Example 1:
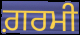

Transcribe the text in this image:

ਗ਼ਰਮੀ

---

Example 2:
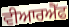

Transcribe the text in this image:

ਵੀਆਰਐੱਫ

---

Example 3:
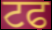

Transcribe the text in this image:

ਟਫ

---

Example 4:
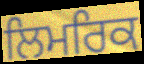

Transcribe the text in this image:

ਲਿਮਰਿਕ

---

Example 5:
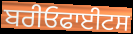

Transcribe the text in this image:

ਬਰੀਓਫਾਈਟਸ